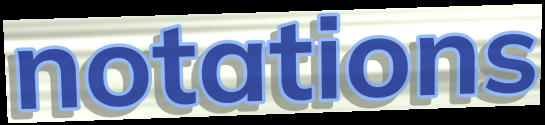
notations